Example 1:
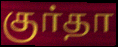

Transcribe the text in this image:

குர்தா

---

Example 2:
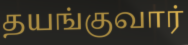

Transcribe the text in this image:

தயங்குவார்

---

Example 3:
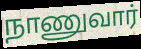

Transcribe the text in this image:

நாணுவார்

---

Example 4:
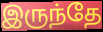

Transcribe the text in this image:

இருந்தே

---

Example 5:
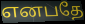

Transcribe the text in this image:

எனபதே